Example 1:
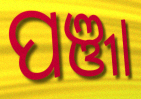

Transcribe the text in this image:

ପଞ୍ଜା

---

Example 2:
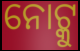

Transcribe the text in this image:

ନୋଟ୍କୁ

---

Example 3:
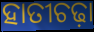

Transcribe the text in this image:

ହାତୀଚଢ଼ା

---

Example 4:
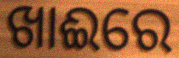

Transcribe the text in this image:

ଖାଈରେ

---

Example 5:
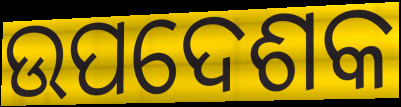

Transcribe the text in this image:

ଉପଦେଶକ